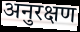
अनुरक्षण